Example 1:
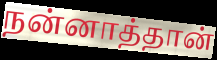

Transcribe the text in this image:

நன்னாத்தான்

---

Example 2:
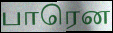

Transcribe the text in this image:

பாரென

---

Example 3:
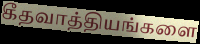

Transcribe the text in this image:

கீதவாத்தியங்களை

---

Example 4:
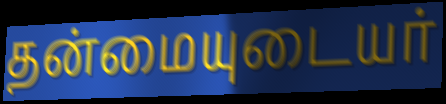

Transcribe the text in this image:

தன்மையுடையர்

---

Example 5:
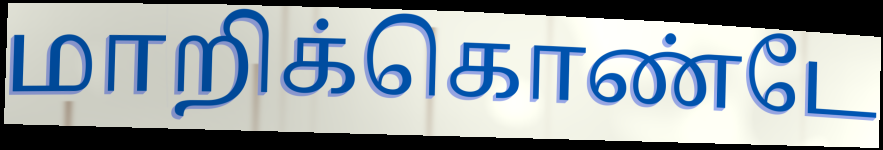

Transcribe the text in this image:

மாறிக்கொண்டே